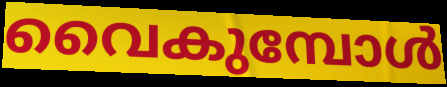
വൈകുമ്പോൾ